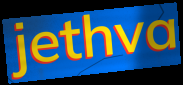
jethva